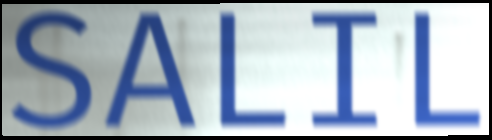
SALIL